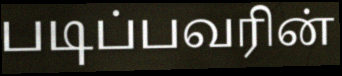
படிப்பவரின்